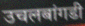
उचलबांगडी